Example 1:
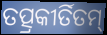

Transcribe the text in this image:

ତତ୍ପ୍ରକୀର୍ତିତମ୍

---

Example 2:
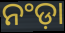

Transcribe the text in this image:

ନଂଡ଼ା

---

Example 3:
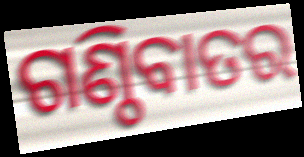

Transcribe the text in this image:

ଗଣ୍ଠିବାତର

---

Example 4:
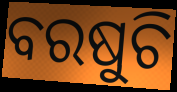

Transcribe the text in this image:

ବରଷୁଚି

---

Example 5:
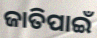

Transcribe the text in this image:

ଜାତିପାଇଁ